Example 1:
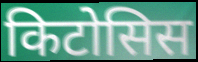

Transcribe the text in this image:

किटोसिस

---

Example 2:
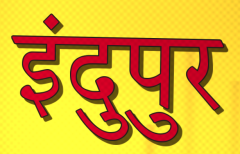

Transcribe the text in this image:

इंदुपुर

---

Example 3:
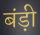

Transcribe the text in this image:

बंड़ी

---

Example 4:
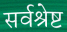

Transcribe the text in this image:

सर्वश्रेष्ट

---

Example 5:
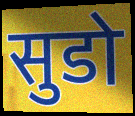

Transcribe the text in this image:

सुडो